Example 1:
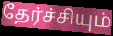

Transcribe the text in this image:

தேர்ச்சியும்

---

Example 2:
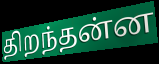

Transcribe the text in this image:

திறந்தன்ன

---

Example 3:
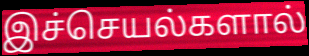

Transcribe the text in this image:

இச்செயல்களால்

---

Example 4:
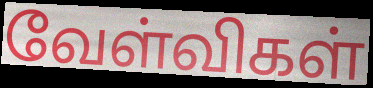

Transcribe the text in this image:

வேள்விகள்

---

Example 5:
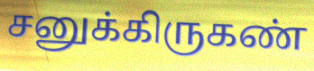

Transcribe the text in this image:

சனுக்கிருகண்